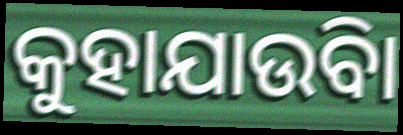
କୁହାଯାଉିବା